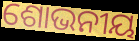
ଶୋଭନୀୟ